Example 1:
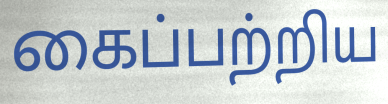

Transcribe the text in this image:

கைப்பற்றிய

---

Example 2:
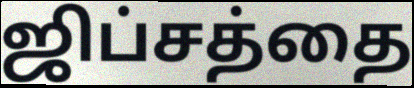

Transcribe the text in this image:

ஜிப்சத்தை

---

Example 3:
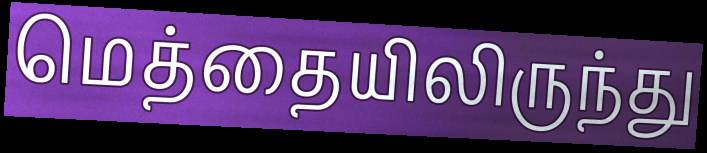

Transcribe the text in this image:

மெத்தையிலிருந்து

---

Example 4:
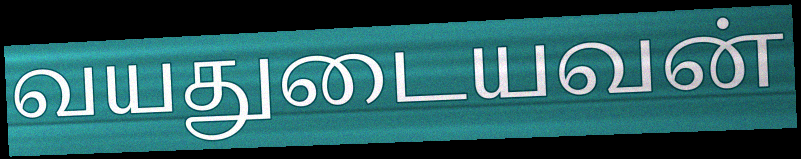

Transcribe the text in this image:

வயதுடையவன்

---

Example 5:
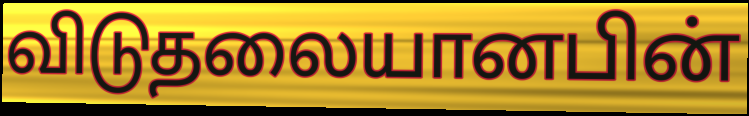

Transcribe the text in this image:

விடுதலையானபின்